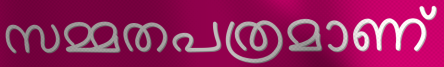
സമ്മതപത്രമാണ്